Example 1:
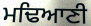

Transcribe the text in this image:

ਮਢਿਆਣੀ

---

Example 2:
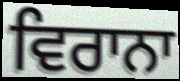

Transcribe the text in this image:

ਵਿਰਾਨਾ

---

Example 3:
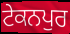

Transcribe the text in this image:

ਟੇਕਨਪੁਰ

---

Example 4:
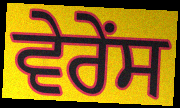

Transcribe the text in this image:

ਵੇਰੇਂਸ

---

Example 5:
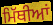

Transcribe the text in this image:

ਮਿੱਥੀਆਂ